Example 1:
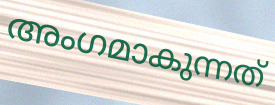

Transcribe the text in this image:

അംഗമാകുന്നത്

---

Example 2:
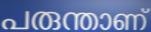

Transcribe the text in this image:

പരുന്താണ്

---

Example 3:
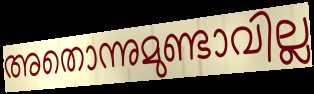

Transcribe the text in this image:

അതൊന്നുമുണ്ടാവില്ല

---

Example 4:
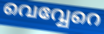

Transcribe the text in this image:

വെവ്വേറെ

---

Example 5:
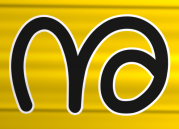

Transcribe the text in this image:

നു